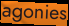
agonies